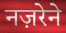
नज़रेने